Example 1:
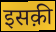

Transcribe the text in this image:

इसक़ी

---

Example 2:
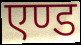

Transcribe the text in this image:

एण्ड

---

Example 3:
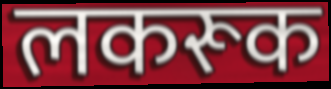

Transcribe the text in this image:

लकरूक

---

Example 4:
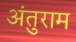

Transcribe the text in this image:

अंतुराम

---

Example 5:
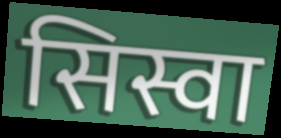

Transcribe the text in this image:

सिस्वा